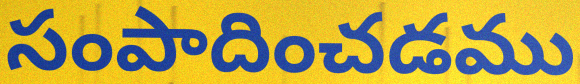
సంపాదించడము